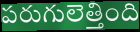
పరుగులెత్తింది